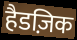
हैडज़िक